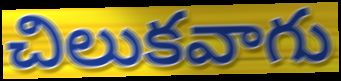
చిలుకవాగు